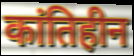
कांतिहीन